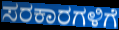
ಸರಕಾರಗಳಿಗೆ